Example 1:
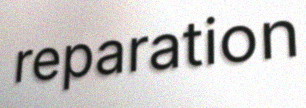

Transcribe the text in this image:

reparation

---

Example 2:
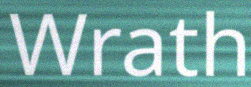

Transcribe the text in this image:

Wrath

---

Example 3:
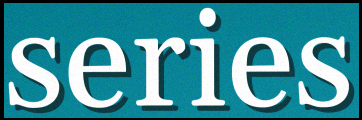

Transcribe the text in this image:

series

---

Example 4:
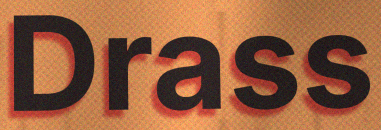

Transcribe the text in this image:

Drass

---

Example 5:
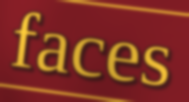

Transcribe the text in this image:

faces